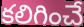
కలిగించే